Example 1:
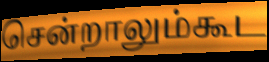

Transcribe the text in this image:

சென்றாலும்கூட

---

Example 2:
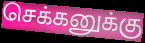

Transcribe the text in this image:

செக்கனுக்கு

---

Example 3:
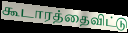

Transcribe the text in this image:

கூடாரத்தைவிட்டு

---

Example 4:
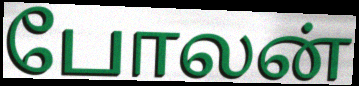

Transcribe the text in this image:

போலன்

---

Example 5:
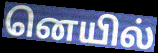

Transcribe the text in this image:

னெயில்